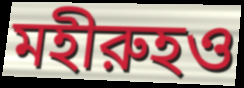
মহীরুহও